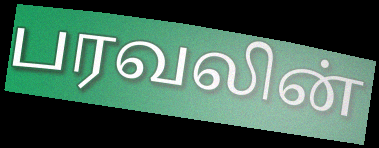
பரவலின்